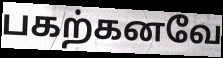
பகற்கனவே